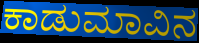
ಕಾಡುಮಾವಿನ